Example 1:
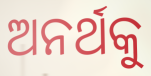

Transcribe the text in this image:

ଅନର୍ଥକୁ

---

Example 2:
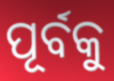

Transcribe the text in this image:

ପୂର୍ବକୁ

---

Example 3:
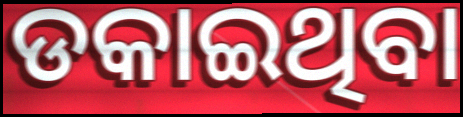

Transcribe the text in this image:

ଡକାଇଥିବା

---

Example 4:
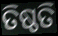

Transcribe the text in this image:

ତିଷ୍ଠତି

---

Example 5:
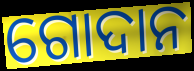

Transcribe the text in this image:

ଗୋଦାନ